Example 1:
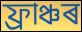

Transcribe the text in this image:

ফ্ৰাঞ্চৰ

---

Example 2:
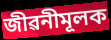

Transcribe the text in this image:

জীৱনীমূলক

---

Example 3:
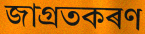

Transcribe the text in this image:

জাগ্ৰতকৰণ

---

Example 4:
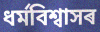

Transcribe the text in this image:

ধৰ্মবিশ্বাসৰ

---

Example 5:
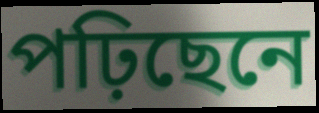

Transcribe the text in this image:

পঢ়িছেনে